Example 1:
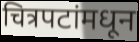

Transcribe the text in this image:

चित्रपटांमधून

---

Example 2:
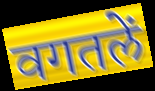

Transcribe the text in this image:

वगतलें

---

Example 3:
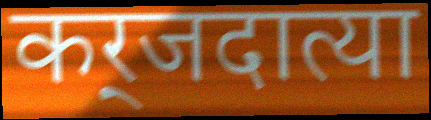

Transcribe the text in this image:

कर्जदात्या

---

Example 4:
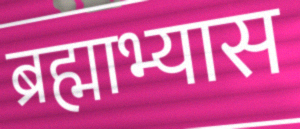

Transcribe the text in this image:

ब्रह्माभ्यास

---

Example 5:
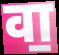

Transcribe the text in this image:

वा॒